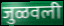
जुळवली